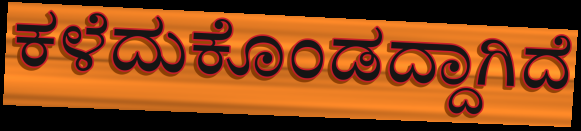
ಕಳೆದುಕೊಂಡದ್ದಾಗಿದೆ